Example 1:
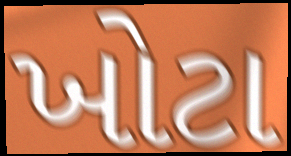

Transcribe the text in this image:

ખોટા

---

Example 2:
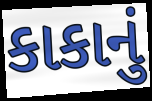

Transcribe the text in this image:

કાકાનું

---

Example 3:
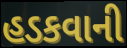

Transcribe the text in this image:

હડકવાની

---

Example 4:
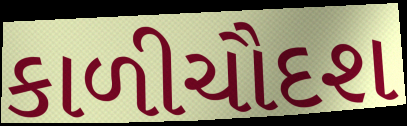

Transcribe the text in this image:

કાળીચૌદશ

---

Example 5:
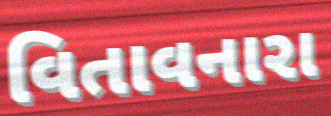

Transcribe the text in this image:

વિતાવનારા